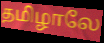
தமிழாலே